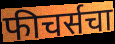
फीचर्सचा